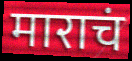
माराचं